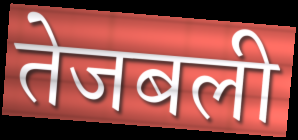
तेजबली